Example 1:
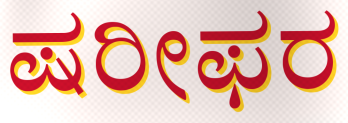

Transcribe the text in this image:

ಷರೀಫರ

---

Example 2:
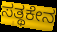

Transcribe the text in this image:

ಸತ್ಥಕೇನ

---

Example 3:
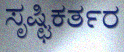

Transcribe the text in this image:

ಸೃಷ್ಟಿಕರ್ತರ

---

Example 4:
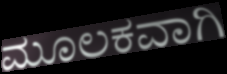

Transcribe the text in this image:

ಮೂಲಕವಾಗಿ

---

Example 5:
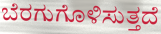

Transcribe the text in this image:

ಬೆರಗುಗೊಳಿಸುತ್ತದೆ